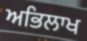
ਅਭਿਲਾਖ